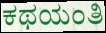
ಕಥಯಂತಿ